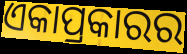
ଏକାପ୍ରକାରର